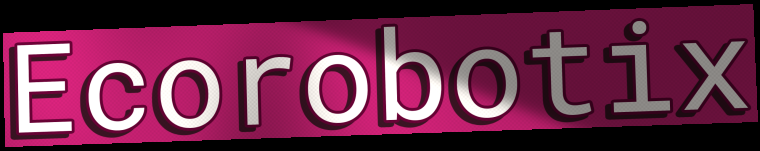
Ecorobotix